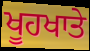
ਖੂਹਖਾਤੇ